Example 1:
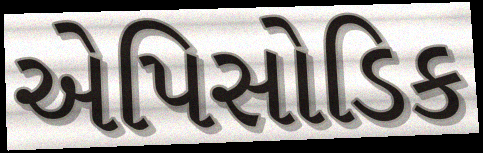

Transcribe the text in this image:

એપિસોડિક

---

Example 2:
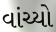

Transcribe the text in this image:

વાંચ્યો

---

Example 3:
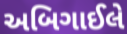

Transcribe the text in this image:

અબિગાઈલે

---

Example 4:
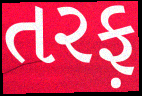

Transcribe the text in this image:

તરફ઼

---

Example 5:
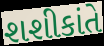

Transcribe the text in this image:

શશીકાંતે